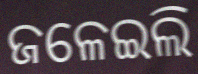
ଜଳେଇଲି